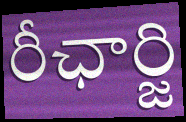
రీఛార్జి